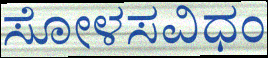
ಸೋಳಸವಿಧಂ